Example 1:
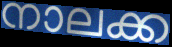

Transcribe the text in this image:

നാലക്ക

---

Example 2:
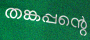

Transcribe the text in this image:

തങ്കപ്പന്റെ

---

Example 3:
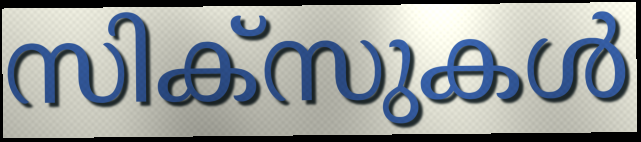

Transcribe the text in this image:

സിക്സുകൾ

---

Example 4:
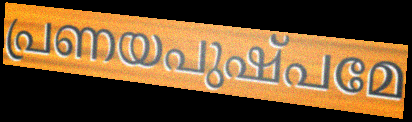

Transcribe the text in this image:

പ്രണയപുഷ്പമേ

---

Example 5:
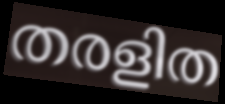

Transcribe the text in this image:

തരളിത